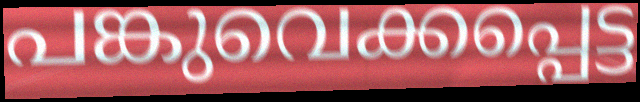
പങ്കുവെക്കപ്പെട്ട